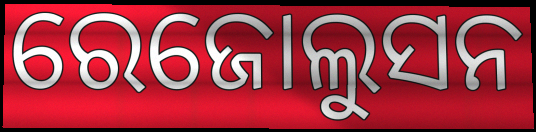
ରେଜୋଲୁସନ